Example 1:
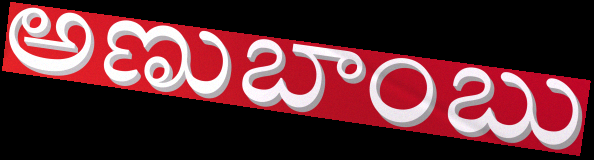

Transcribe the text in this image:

అణుబాంబు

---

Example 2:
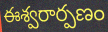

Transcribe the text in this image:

ఈశ్వరార్పణం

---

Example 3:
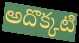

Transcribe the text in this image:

అదొక్కటి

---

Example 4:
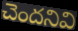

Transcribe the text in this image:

చెందనివి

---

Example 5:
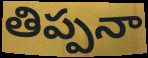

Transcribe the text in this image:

తిప్పనా